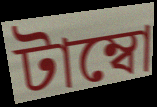
টাম্বো